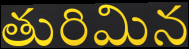
తురిమిన